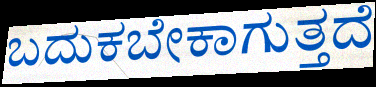
ಬದುಕಬೇಕಾಗುತ್ತದೆ